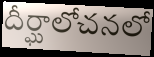
దీర్ఘాలోచనలో